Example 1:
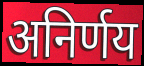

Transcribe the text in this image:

अनिर्णय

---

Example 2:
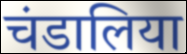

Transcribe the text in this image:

चंडालिया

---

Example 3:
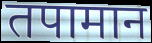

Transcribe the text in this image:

तपामान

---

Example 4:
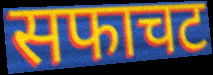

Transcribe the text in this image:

सफाचट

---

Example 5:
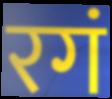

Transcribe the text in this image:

रगं